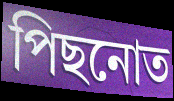
পিছনোত